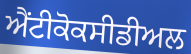
ਐਂਟੀਕੋਕਸੀਡੀਅਲ